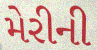
મેરીની